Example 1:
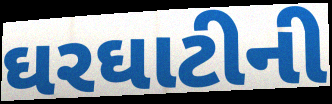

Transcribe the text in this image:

ઘરઘાટીની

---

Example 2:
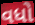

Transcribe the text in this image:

વધો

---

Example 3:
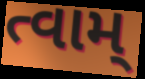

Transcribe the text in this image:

ત્વામ્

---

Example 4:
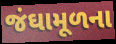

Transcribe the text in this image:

જંઘામૂળના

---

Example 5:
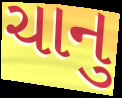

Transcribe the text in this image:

ચાનુ